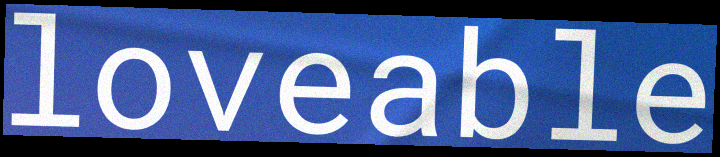
loveable